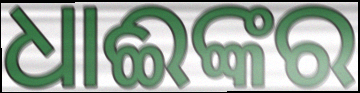
ଧାଈଙ୍କର